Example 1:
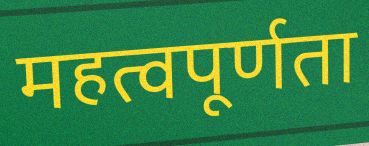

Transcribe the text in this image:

महत्वपूर्णता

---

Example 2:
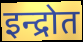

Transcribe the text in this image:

इन्द्रोत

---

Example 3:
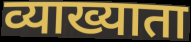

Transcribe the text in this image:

व्याख्याता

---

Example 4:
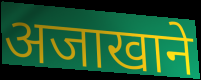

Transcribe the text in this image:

अजाखाने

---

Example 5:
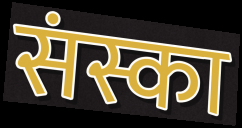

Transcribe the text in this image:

संस्का